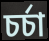
চর্চা